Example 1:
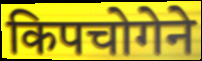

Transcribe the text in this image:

किपचोगेने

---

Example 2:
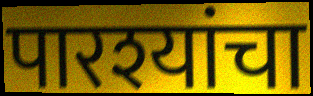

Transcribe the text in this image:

पारश्यांचा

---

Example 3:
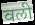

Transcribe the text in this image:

वली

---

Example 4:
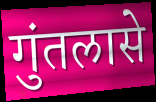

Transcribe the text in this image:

गुंतलासे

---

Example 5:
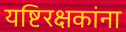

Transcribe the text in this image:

यष्टिरक्षकांना